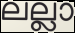
ലല്ലാ